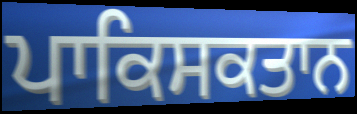
ਪਾਕਿਸਕਤਾਨ